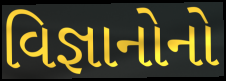
વિજ્ઞાનોનો